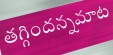
తగ్గిందన్నమాట